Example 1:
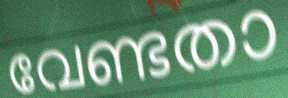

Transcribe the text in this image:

വേണ്ടതാ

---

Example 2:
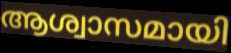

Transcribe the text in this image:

ആശ്വാസമായി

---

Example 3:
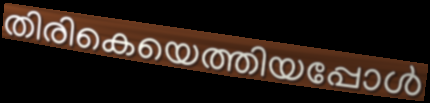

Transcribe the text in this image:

തിരികെയെത്തിയപ്പോൾ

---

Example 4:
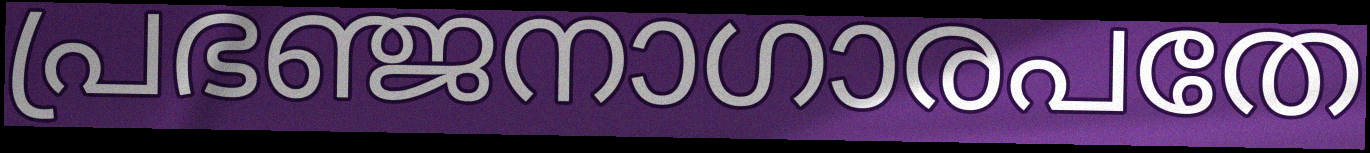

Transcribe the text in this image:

പ്രഭഞ്ജനാഗാരപതേ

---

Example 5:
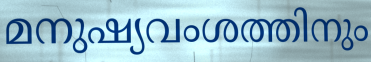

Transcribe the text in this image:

മനുഷ്യവംശത്തിനും